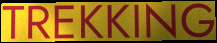
TREKKING